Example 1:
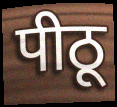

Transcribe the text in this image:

पीठू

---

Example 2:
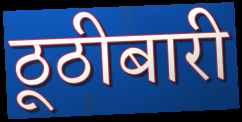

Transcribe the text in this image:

ठूठीबारी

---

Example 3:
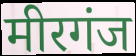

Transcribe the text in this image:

मीरगंज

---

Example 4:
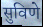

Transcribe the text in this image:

सुविणे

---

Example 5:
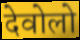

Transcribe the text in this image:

देवोलो